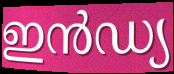
ഇൻഡ്യ